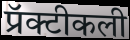
प्रॅक्टीकली